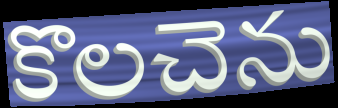
కొలచెను